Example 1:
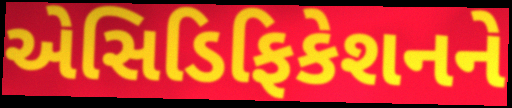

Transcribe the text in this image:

એસિડિફિકેશનને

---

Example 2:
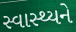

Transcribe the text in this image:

સ્વાસ્થ્યને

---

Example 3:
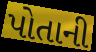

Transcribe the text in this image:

પોતાની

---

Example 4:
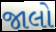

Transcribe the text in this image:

જાલો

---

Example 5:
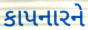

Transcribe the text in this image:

કાપનારને